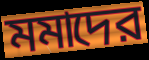
মমাদের